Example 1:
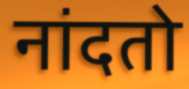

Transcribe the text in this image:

नांदतो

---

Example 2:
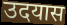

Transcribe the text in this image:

उदयास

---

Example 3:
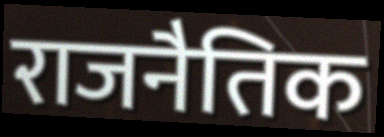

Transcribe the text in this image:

राजनैतिक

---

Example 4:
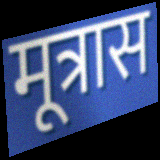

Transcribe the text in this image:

मूत्रास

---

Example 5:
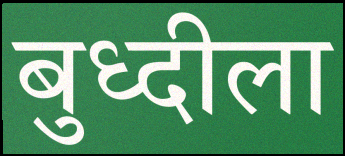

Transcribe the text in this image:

बुध्दीला